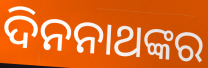
ଦିନନାଥଙ୍କର